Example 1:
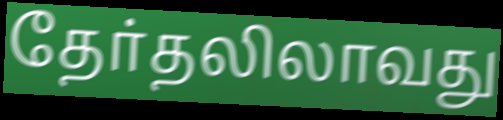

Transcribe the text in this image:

தேர்தலிலாவது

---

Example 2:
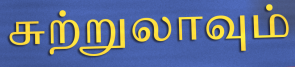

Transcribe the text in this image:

சுற்றுலாவும்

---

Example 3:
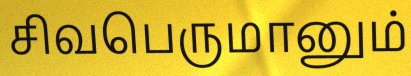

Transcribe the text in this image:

சிவபெருமானும்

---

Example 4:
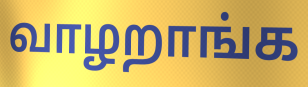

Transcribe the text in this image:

வாழறாங்க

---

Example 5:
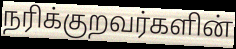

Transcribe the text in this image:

நரிக்குறவர்களின்